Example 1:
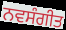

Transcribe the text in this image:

ਨਵਸੰਗੀਤ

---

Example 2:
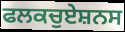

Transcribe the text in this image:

ਫਲਕਚੁਏਸ਼ਨਸ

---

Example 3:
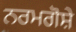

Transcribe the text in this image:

ਨਰਮਗੋਸ਼ੇ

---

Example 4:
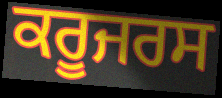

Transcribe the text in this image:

ਕਰੂਜਰਸ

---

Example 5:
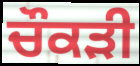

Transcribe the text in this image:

ਚੌਕੜੀ